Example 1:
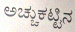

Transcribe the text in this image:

ಅಚ್ಚುಕಟ್ಟಿನ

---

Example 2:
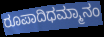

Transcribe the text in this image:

ರೂಪಾದಿಧಮ್ಮಾನಂ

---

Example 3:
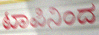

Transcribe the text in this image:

ಟಾಪಿನಿಂದ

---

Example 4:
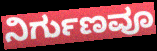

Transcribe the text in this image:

ನಿರ್ಗುಣವೂ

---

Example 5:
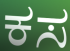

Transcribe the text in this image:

ಕಸ